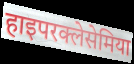
हाइपरक्लेसेमिया